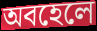
অবহেলে